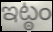
ఇట్ఠం